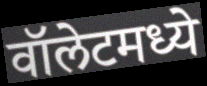
वॉलेटमध्ये